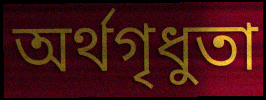
অর্থগৃধুতা